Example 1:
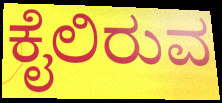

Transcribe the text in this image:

ಕೈಲಿರುವ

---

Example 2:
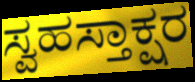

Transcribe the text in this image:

ಸ್ವಹಸ್ತಾಕ್ಷರ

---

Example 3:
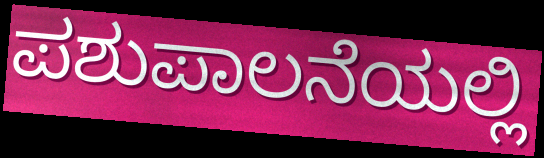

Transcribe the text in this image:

ಪಶುಪಾಲನೆಯಲ್ಲಿ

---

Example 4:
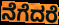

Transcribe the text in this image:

ನೆಗೆದರೆ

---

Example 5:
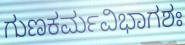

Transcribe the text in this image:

ಗುಣಕರ್ಮವಿಭಾಗಶಃ